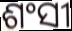
ଶଂସୀ